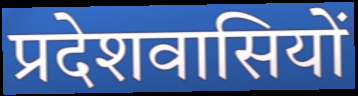
प्रदेशवासियों